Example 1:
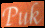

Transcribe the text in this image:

Puk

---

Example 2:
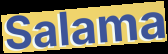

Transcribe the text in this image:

Salama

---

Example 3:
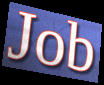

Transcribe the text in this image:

Job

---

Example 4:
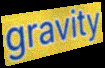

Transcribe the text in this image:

gravity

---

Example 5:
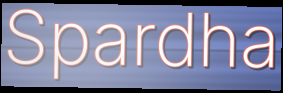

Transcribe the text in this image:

Spardha